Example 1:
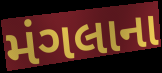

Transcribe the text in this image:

મંગલાના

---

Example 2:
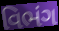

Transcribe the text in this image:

વિભંગ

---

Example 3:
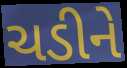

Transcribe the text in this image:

ચડીને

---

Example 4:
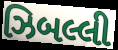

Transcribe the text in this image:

ઝિબલ્લી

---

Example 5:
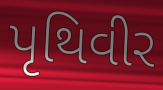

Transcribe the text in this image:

પૃથિવીર